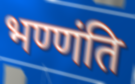
भण्णंति